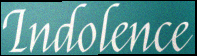
Indolence